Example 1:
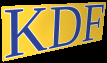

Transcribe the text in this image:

KDF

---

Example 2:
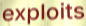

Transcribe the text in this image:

exploits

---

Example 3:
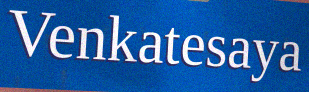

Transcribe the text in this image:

Venkatesaya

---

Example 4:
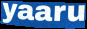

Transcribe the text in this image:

yaaru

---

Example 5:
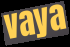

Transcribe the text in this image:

vaya